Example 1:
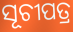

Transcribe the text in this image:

ସୂଚୀପତ୍ର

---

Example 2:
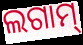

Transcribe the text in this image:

ଲଗାମ୍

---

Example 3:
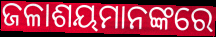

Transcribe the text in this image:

ଜଳାଶୟମାନଙ୍କରେ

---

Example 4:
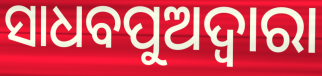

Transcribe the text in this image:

ସାଧବପୁଅଦ୍ୱାରା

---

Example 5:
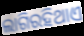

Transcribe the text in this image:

ଲାଗିରହିଥାଏ